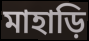
মাহাড়ি